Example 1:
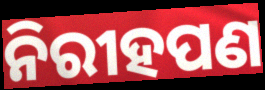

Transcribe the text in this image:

ନିରୀହପଣ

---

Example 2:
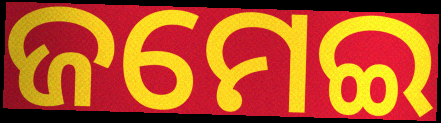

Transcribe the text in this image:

ଜମେଇ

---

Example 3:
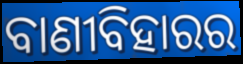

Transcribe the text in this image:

ବାଣୀବିହାରର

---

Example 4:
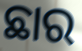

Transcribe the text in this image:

ଛାର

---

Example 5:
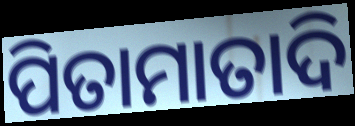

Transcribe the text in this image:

ପିତାମାତାଦି